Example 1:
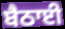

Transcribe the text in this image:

ਬੈਠਾਈ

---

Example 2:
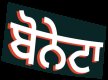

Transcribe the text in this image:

ਬੋਨੇਟਾ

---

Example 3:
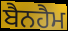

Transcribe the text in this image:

ਬੈਨਹੈਮ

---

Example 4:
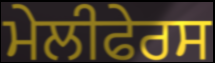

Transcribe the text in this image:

ਮੇਲੀਫੇਰਸ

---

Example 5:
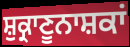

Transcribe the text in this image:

ਸ਼ੁਕ੍ਰਾਣੂਨਾਸ਼ਕਾਂ